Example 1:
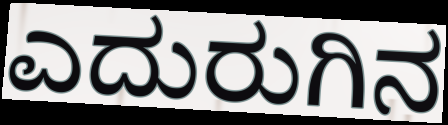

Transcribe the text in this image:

ಎದುರುಗಿನ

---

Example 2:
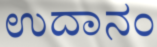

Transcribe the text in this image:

ಉದಾನಂ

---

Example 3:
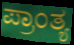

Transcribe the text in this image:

ಪ್ರಾಂತ್ಯ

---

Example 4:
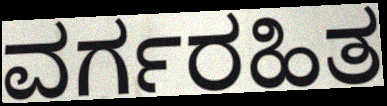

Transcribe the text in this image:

ವರ್ಗರಹಿತ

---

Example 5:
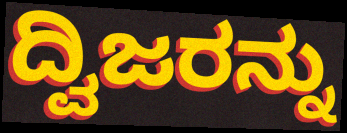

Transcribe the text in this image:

ದ್ವಿಜರನ್ನು